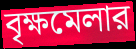
বৃক্ষমেলার